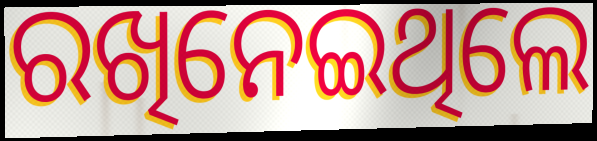
ରଖିନେଇଥିଲେ